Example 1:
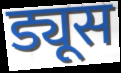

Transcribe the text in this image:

ड्यूस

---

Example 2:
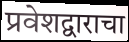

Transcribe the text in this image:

प्रवेशद्वाराचा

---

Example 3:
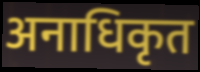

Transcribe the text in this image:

अनाधिकृत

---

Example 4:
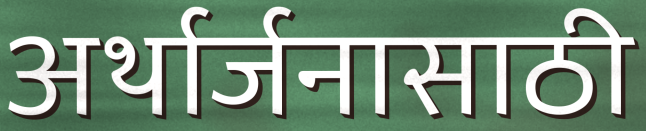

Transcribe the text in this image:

अर्थार्जनासाठी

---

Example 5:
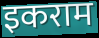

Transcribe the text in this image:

इकराम